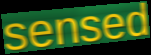
sensed